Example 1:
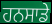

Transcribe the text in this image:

ਹਨਸਾਡੇ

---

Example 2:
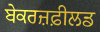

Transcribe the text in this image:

ਬੇਕਰਜ਼ਫ਼ੀਲਡ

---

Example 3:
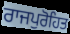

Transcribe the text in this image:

ਰਾਜਪੁਰੋਹਿਤ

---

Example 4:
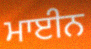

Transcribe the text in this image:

ਮਾਈਨ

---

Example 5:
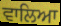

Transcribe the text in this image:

ਵਾਲਿਆ